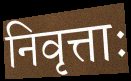
निवृत्ताः